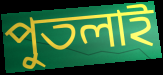
পুতলাই